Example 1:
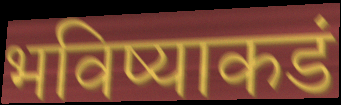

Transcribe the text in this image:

भविष्याकडं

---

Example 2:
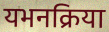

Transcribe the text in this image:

यभनक्रिया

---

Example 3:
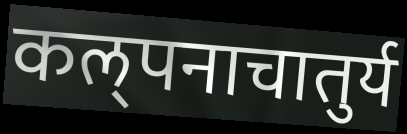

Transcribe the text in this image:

कल्पनाचातुर्य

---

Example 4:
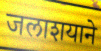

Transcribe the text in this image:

जलाशयाने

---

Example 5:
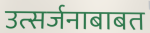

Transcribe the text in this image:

उत्सर्जनाबाबत